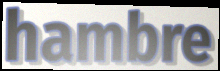
hambre